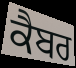
ਕੈਬਰ